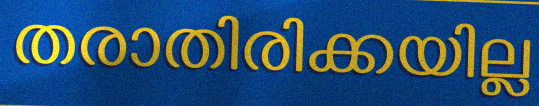
തരാതിരിക്കയില്ല